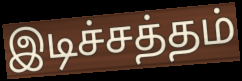
இடிச்சத்தம்